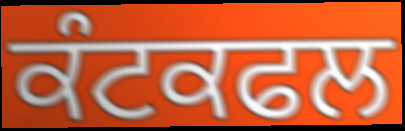
ਕੰਟਕਫਲ